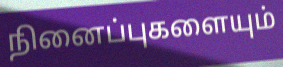
நினைப்புகளையும்